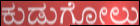
ಕುಡುಗೋಲು